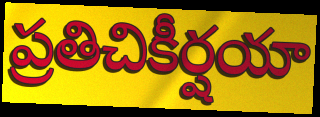
ప్రతిచికీర్షయా